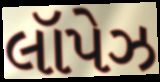
લૉપેઝ